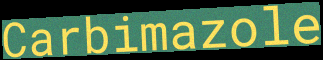
Carbimazole